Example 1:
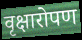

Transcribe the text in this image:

वृक्षारोपण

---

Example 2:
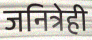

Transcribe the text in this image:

जनित्रेही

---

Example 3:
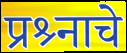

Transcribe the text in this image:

प्रश्र्नाचे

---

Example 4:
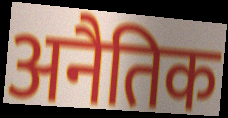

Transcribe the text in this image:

अनैतिक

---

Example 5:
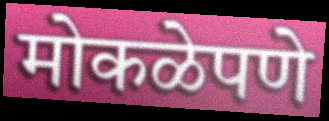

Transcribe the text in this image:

मोकळेपणे